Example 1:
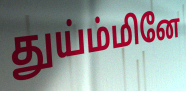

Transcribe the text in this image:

துய்ம்மினே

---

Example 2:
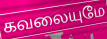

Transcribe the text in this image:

கவலையுமே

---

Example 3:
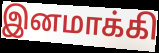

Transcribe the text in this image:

இனமாக்கி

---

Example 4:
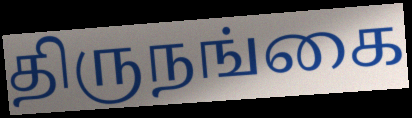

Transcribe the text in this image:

திருநங்கை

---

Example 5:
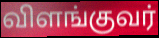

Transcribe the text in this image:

விளங்குவர்